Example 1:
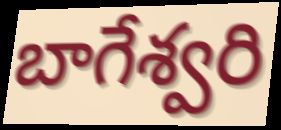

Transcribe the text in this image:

బాగేశ్వరి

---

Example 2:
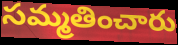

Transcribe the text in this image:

సమ్మతించారు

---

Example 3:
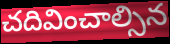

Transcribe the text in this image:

చదివించాల్సిన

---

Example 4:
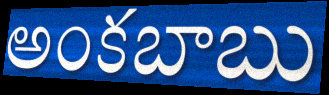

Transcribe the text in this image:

అంకబాబు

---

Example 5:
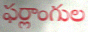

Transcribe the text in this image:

ఫర్లాంగుల